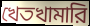
খেতখামারি